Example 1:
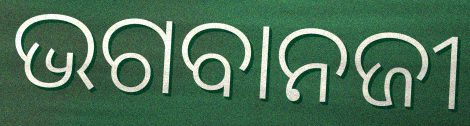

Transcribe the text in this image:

ଭଗବାନଜୀ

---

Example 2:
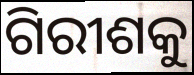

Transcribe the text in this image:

ଗିରୀଶକୁ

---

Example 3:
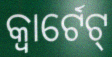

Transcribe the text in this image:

କ୍ୱାର୍ଟେଟ୍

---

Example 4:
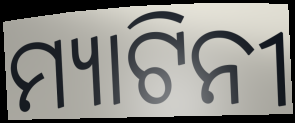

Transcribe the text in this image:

ମ୍ୟାଟିନୀ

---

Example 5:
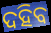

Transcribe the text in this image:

ଦହିବ